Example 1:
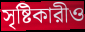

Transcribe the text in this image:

সৃষ্টিকারীও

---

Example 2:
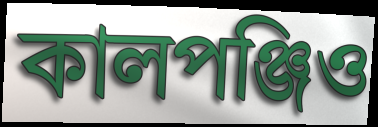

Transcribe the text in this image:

কালপঞ্জিও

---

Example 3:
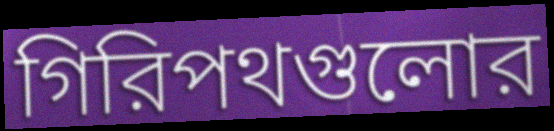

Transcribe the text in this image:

গিরিপথগুলোর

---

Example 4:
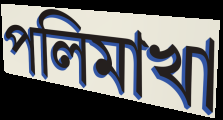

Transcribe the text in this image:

পলিমাখা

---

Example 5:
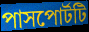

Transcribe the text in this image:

পাসপোর্টটি